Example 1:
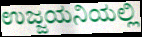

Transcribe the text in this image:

ಉಜ್ಜಯನಿಯಲ್ಲಿ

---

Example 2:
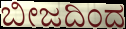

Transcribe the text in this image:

ಬೀಜದಿಂದ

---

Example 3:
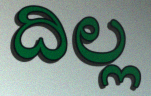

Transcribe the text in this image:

ದಿಲ್ಲ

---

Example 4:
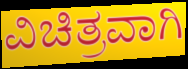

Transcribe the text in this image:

ವಿಚಿತ್ರವಾಗಿ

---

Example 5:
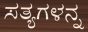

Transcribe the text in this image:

ಸತ್ಯಗಳನ್ನ